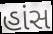
હાંસ